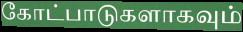
கோட்பாடுகளாகவும்